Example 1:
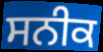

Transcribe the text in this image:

ਸਨੀਕ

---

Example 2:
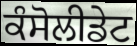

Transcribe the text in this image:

ਕੰਸੋਲੀਡੇਟ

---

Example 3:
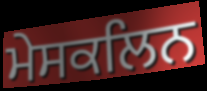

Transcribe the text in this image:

ਮੇਸਕਲਿਨ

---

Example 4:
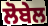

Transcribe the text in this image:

ਲੋਬੇਲ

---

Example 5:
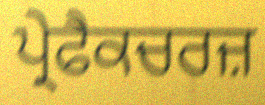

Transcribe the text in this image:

ਪ੍ਰੇਫੈਕਚਰਜ਼